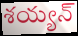
శయ్యన్